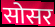
सोसर